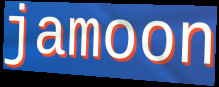
jamoon